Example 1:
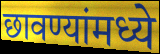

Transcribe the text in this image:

छावण्यांमध्ये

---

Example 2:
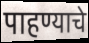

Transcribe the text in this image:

पाहण्याचे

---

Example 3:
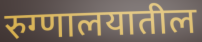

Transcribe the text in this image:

रुग्णालयातील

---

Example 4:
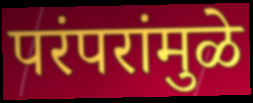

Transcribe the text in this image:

परंपरांमुळे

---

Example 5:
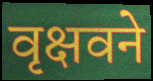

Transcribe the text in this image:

वृक्षवने